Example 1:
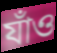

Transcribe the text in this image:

যাঁও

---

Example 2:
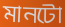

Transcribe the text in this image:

মানটো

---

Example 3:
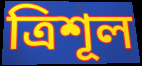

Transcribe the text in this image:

ত্ৰিশূল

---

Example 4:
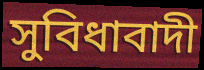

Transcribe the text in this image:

সুবিধাবাদী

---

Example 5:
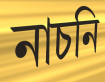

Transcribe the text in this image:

নাচনি